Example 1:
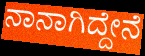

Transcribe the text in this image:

ನಾನಾಗಿದ್ದೇನೆ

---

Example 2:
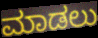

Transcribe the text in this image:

ಮಾಡಲು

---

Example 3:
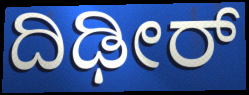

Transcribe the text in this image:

ದಿಢೀರ್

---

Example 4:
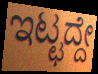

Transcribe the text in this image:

ಇಟ್ಟದ್ದೇ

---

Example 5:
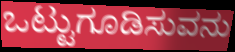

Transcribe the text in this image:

ಒಟ್ಟುಗೂಡಿಸುವನು